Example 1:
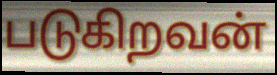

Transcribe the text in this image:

படுகிறவன்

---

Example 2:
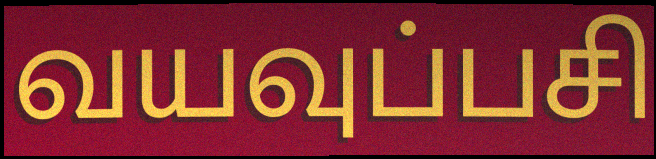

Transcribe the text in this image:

வயவுப்பசி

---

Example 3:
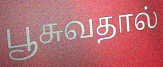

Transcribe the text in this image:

பூசுவதால்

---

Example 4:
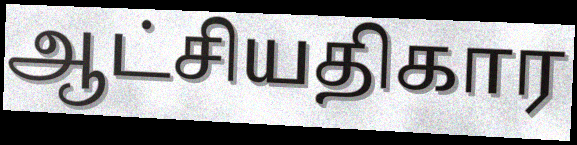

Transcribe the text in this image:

ஆட்சியதிகார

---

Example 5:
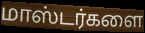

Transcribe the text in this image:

மாஸ்டர்களை